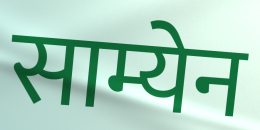
साम्येन